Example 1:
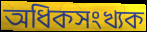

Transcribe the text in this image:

অধিকসংখ্যক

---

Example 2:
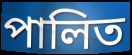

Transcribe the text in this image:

পালিত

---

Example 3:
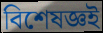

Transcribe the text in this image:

বিশেষজ্ঞই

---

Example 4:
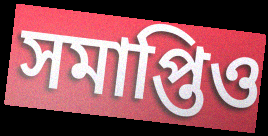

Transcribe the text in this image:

সমাপ্তিও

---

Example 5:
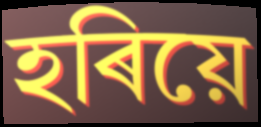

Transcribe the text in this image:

হৰিয়ে